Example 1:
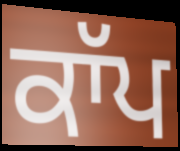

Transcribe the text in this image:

ਕਾੱਪ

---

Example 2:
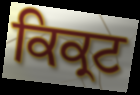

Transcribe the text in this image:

ਕਿਕ੍ਰਟ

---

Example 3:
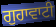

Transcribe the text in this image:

ਗੁਹਾਵਾਟੀ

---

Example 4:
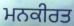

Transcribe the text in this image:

ਮਨਕੀਰਤ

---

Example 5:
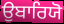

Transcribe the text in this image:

ਉਬਾਰਿਯੋ